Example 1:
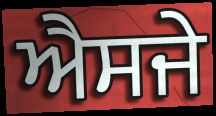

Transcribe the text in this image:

ਐਸਜੇ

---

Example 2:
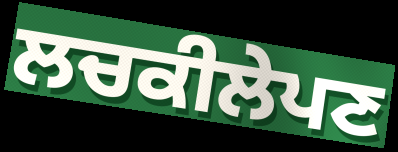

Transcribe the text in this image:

ਲਚਕੀਲੇਪਣ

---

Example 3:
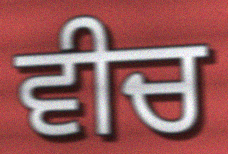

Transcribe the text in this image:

ਵੀਚ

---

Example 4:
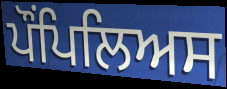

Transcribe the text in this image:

ਪੌਂਪਿਲਿਅਸ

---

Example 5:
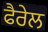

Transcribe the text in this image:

ਫੈਰੇਲ